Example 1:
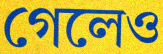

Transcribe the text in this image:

গেলেও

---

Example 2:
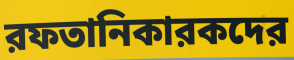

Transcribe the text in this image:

রফতানিকারকদের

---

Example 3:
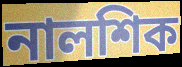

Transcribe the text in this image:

নালশিক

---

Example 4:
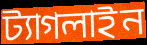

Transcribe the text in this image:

ট্যাগলাইন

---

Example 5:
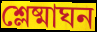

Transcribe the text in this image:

শ্লেষ্মাঘন